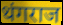
थंगराज